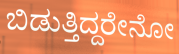
ಬಿಡುತ್ತಿದ್ದರೇನೋ